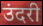
उंदरी